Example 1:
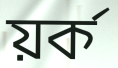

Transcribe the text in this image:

য়ৰ্ক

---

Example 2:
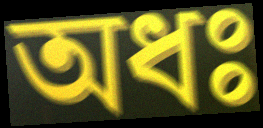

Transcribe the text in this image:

অধঃ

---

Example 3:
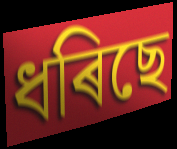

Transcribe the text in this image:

ধৰিছে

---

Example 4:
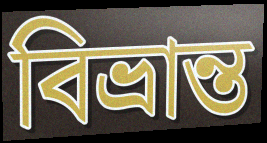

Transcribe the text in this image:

বিভ্ৰান্ত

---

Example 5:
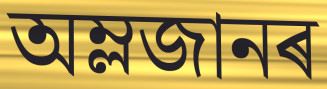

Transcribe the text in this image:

অম্লজানৰ